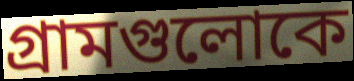
গ্রামগুলোকে